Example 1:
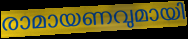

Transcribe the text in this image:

രാമായണവുമായി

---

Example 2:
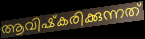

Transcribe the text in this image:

ആവിഷ്‌കരിക്കുന്നത്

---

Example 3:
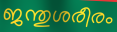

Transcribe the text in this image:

ജന്തുശരീരം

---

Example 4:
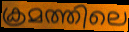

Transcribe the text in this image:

ക്രമത്തിലെ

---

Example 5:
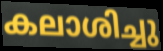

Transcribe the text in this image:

കലാശിച്ചു